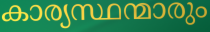
കാര്യസ്ഥന്മാരും